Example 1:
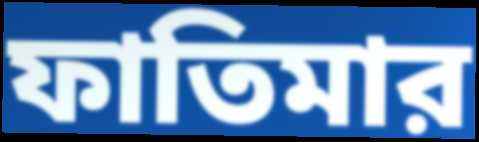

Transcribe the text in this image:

ফাতিমার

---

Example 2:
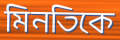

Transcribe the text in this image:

মিনতিকে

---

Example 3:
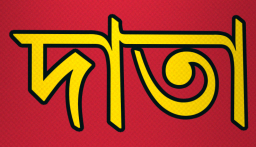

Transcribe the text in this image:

দাতা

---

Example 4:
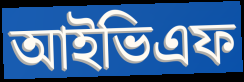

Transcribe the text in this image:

আইভিএফ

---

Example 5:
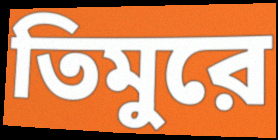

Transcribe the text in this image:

তিমুরে